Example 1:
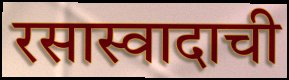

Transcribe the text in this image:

रसास्वादाची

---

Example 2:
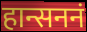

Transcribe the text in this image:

हान्सननं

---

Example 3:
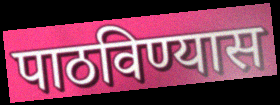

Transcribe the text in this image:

पाठविण्यास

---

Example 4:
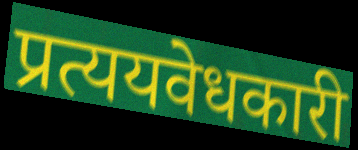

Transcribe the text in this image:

प्रत्ययवेधकारी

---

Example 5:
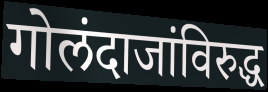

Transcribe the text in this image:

गोलंदाजांविरुद्ध